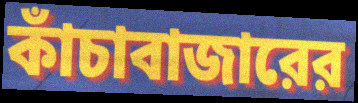
কাঁচাবাজারের